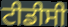
ਟੀਡੀਸੀ